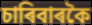
চাৰিবাৰকৈ